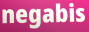
negabis